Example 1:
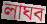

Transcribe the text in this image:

লাঘব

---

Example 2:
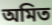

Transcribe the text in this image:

অমিত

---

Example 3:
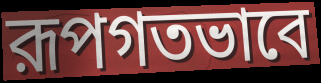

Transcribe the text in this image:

রূপগতভাবে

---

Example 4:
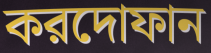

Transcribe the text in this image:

করদোফান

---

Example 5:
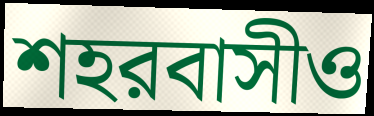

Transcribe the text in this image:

শহরবাসীও